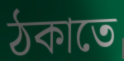
ঠকাতে